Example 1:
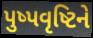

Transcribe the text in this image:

પુષ્પવૃષ્ટિને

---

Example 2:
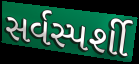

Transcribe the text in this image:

સર્વસ્પર્શી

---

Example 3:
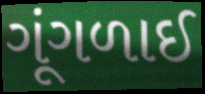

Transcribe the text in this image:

ગૂંગળાઈ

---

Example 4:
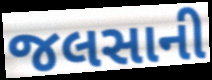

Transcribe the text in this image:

જલસાની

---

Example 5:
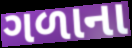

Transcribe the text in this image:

ગળાના